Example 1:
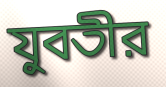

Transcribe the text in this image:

যুবতীর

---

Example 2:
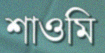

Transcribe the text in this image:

শাওমি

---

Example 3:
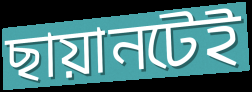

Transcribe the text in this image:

ছায়ানটেই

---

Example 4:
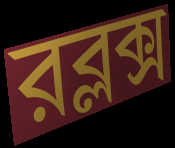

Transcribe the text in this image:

রব্লক্স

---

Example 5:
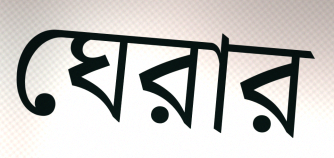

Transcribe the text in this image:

ঘেরার